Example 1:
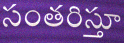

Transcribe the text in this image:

సంతరిస్తూ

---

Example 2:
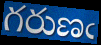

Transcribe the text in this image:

గరుణఁ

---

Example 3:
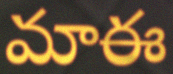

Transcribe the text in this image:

మాఈ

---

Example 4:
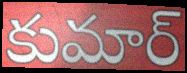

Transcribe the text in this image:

కుమార్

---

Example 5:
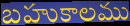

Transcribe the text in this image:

బహుకాలము